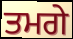
ਤਮਗੇ